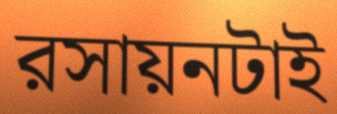
রসায়নটাই